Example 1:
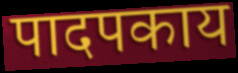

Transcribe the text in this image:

पादपकाय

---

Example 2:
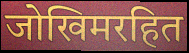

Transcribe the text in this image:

जोखिमरहित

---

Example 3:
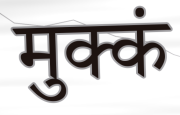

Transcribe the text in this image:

मुक्कं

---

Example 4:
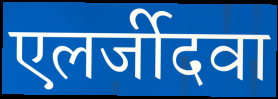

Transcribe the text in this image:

एलर्जीदवा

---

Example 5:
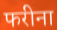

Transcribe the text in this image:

फरीना